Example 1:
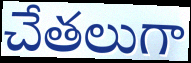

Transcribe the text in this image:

చేతలుగా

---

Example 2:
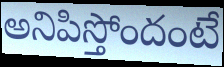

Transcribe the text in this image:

అనిపిస్తోందంటే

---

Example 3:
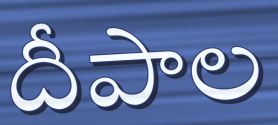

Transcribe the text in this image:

దీపాల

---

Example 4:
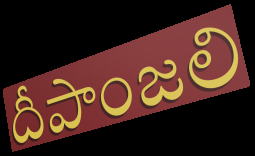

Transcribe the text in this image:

దీపాంజలి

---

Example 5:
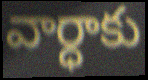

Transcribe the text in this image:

వార్ధాకు